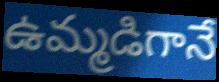
ఉమ్మడిగానే